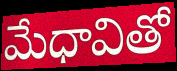
మేధావితో